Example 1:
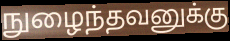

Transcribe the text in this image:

நுழைந்தவனுக்கு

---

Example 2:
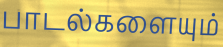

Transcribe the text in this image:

பாடல்களையும்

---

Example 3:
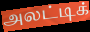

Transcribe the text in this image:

அலட்டிக்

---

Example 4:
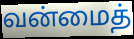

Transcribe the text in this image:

வன்மைத்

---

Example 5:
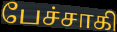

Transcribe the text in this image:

பேச்சாகி